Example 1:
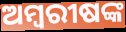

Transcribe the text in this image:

ଅମ୍ବରୀଷଙ୍କ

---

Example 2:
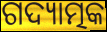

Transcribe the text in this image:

ଗଦ୍ୟାତ୍ମକ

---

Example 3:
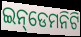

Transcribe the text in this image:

ଇନ୍‌ଡେମନିଟି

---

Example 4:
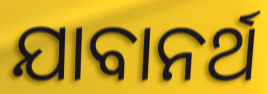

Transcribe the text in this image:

ଯାବାନର୍ଥ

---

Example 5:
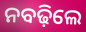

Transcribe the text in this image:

ନବଢ଼ିଲେ